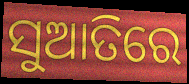
ସୁଆତିରେ